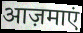
आज़माएं